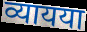
व्यायया